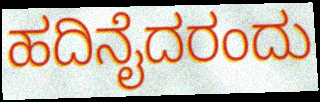
ಹದಿನೈದರಂದು